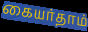
கையர்தாம்